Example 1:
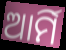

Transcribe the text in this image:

ଆର୍ମି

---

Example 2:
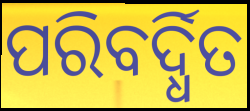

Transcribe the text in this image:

ପରିବର୍ଦ୍ଧିତ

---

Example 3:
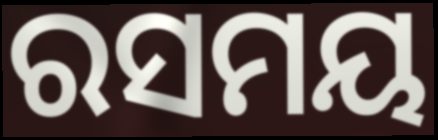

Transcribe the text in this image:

ରସମୟ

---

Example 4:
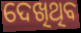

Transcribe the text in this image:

ଦେଖିଥିବ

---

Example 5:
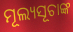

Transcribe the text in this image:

ମୂଲ୍ୟସୂଚାଙ୍କ